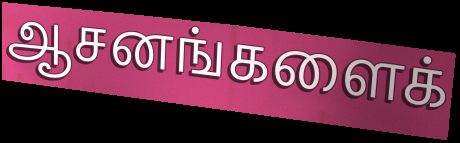
ஆசனங்களைக்